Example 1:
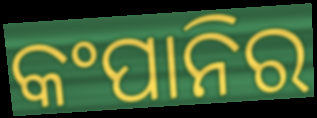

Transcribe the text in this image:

କଂପାନିର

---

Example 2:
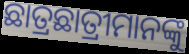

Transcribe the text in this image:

ଛାତ୍ରଛାତ୍ରୀମାନଙ୍କୁ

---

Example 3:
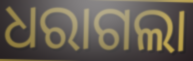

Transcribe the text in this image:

ଧରାଗଲା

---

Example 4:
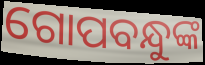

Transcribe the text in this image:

ଗୋପବନ୍ଧୁଙ୍କ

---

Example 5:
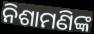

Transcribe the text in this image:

ନିଶାମଣିଙ୍କ